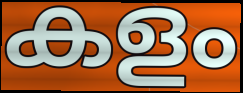
കളം